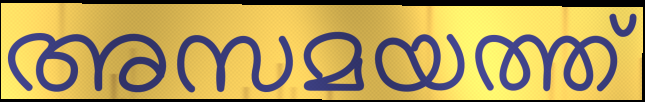
അസമയത്ത്